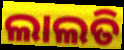
ଲାଲତି